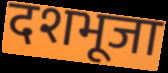
दशभूजा